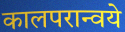
कालपरान्वये